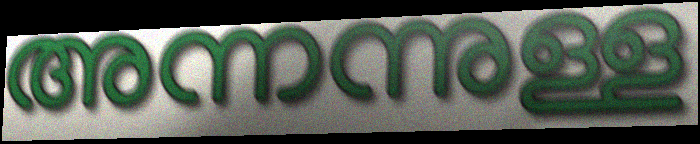
അന്നന്നുള്ള